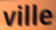
ville